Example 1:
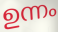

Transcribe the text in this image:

ഉന്നം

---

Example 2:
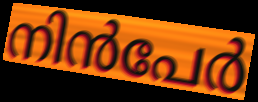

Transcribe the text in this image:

നിൻപേർ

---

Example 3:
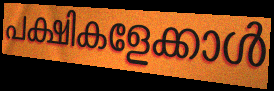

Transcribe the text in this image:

പക്ഷികളേക്കാൾ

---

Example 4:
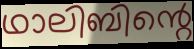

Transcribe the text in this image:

ഥാലിബിന്റെ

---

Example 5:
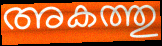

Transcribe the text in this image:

അകത്തു